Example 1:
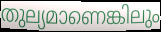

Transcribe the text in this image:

തുല്യമാണെങ്കിലും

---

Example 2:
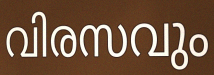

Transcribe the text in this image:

വിരസവും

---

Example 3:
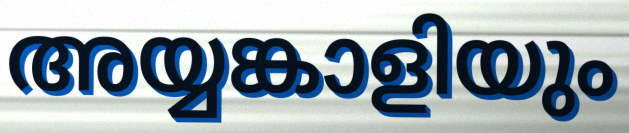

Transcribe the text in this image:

അയ്യങ്കാളിയും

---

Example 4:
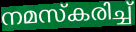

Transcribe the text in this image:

നമസ്‌കരിച്ച്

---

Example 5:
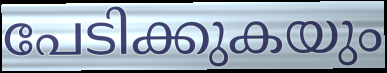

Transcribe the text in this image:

പേടിക്കുകയും